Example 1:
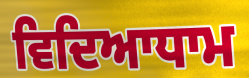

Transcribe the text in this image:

ਵਿਦਿਆਧਾਮ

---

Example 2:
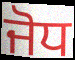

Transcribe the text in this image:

ਜੋਧ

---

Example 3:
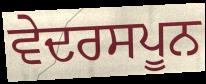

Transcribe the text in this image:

ਵੇਦਰਸਪੂਨ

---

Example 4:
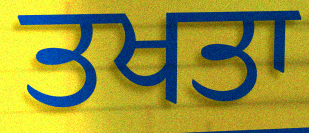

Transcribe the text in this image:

ਤਖਤਾ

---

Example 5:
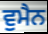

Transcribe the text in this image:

ਵੁਮੈਨ